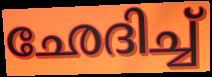
ഛേദിച്ച്